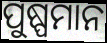
ପୁଷ୍ପମାନ